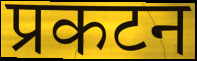
प्रकटन